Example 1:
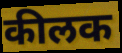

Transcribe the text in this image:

कीलक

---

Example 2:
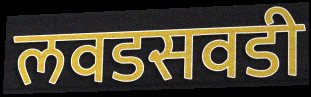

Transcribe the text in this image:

लवडसवडी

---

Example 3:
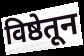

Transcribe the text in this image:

विष्ठेतून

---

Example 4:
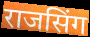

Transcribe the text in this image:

राजसिंग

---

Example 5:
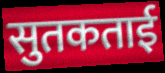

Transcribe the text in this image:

सुतकताई